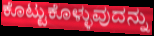
ಕೊಟ್ಟುಕೊಳ್ಳುವುದನ್ನು